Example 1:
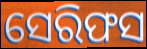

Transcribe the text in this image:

ସେରିଫସ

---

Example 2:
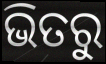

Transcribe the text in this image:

ଭିତରୁ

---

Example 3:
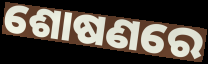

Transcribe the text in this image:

ଶୋଷଣରେ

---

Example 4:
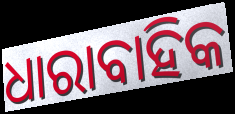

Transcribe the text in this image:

ଧାରାବାହିକ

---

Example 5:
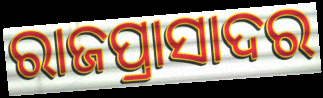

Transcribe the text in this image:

ରାଜପ୍ରାସାଦର